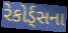
રેકોર્ડ્સના